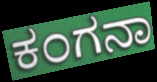
ಕಂಗನಾ